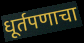
धूर्तपणाचा